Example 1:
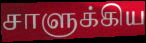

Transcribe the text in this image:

சாளுக்கிய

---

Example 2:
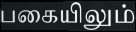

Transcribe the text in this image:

பகையிலும்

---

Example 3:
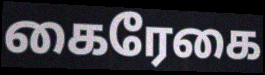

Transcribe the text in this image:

கைரேகை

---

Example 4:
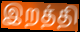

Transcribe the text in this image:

இறத்தி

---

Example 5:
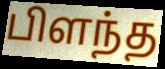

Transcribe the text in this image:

பிளந்த